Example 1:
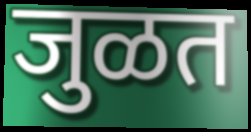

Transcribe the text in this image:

जुळत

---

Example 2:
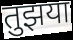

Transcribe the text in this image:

तुझया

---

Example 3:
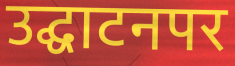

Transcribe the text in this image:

उद्घाटनपर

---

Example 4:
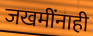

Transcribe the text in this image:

जखमींनाही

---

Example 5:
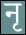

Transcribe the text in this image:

नृ